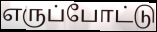
எருப்போட்டு